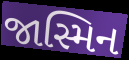
જાસ્મિન